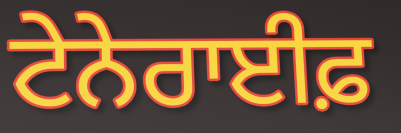
ਟੇਨੇਰਾਈਫ਼